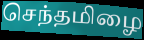
செந்தமிழை